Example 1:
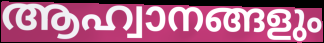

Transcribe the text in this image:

ആഹ്വാനങ്ങളും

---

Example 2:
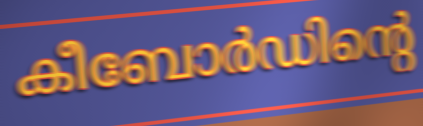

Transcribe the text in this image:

കീബോർഡിന്റെ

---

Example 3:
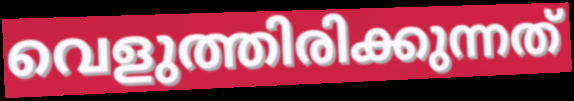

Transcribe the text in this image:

വെളുത്തിരിക്കുന്നത്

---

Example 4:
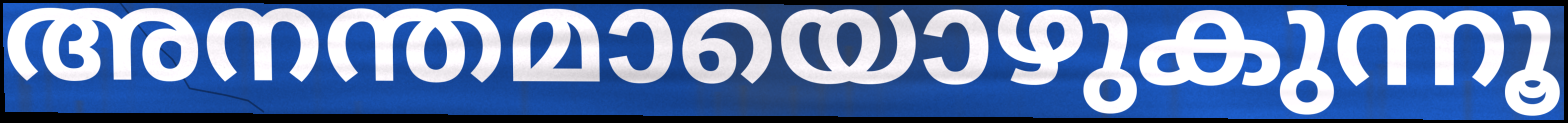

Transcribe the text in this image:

അനന്തമായൊഴുകുന്നൂ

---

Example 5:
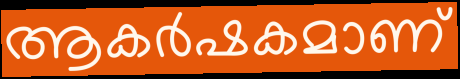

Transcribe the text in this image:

ആകർഷകമാണ്